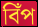
বিঁপ